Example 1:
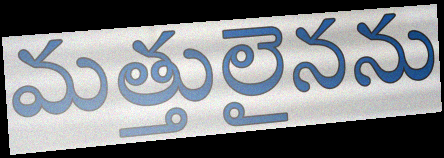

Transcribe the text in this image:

మత్తులైనను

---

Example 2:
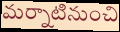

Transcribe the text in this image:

మర్నాటినుంచి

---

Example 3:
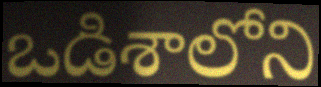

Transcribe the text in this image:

ఒడిశాలోని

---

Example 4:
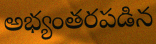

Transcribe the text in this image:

అభ్యంతరపడిన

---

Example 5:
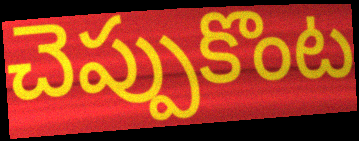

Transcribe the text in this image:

చెప్పుకొంట